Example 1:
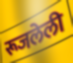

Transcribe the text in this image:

रूजलेली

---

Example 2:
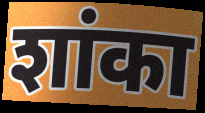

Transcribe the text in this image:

शांका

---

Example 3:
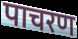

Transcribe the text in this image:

पाचरण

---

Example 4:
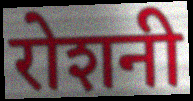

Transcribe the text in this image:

रोशनी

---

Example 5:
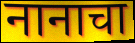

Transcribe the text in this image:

नानाचा